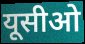
यूसीओ